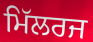
ਮਿੱਲਰਜ